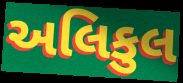
અલિકુલ